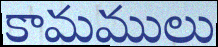
కామములు